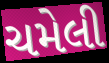
ચમેલી